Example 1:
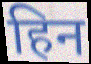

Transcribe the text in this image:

हिन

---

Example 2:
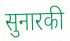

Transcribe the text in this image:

सुनारकी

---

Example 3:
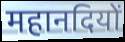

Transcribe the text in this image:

महानदियों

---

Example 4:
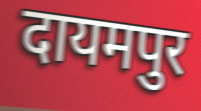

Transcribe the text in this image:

दायमपुर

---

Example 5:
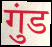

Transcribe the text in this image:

गुंड